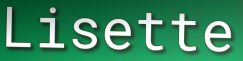
Lisette